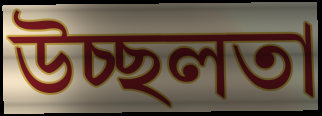
উচ্ছলতা